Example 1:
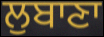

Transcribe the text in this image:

ਲੁਬਾਣਾ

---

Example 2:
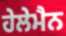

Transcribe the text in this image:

ਹੇਲੇਮੈਨ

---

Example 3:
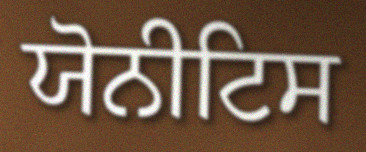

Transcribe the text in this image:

ਯੋਨੀਟਿਸ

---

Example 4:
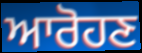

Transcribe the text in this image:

ਆਰੋਹਣ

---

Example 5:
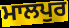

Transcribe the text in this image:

ਮਾਲਪੁਰ